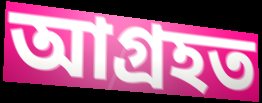
আগ্ৰহত